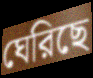
ঘেরিছে